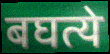
बघत्ये